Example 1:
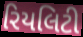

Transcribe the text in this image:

રિયલિટી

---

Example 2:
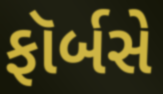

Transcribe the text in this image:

ફૉર્બસે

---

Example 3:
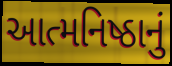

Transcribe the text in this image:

આત્મનિષ્ઠાનું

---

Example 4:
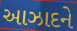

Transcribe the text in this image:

આઝાદને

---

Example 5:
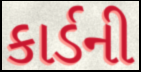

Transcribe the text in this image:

કાર્ડની